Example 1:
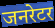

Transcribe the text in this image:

जनरेटर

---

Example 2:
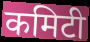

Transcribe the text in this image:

कमिटी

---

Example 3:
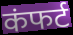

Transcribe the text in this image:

कंफर्ट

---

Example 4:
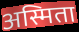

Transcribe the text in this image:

अस्मिता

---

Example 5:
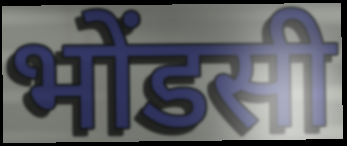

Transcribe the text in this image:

भोंडसी